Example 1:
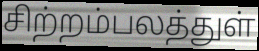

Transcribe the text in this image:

சிற்றம்பலத்துள்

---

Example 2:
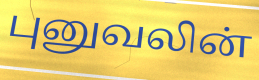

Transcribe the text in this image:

புனுவலின்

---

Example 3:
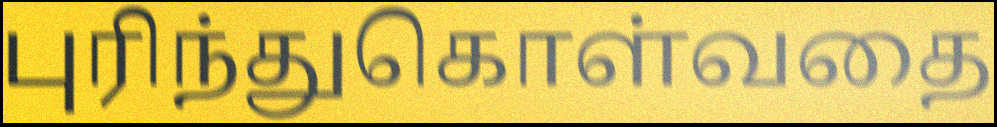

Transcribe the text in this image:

புரிந்துகொள்வதை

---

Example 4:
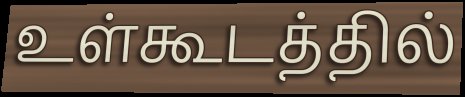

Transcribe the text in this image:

உள்கூடத்தில்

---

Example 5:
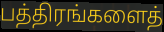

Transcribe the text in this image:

பத்திரங்களைத்